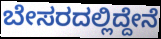
ಬೇಸರದಲ್ಲಿದ್ದೇನೆ